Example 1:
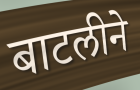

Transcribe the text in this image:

बाटलीने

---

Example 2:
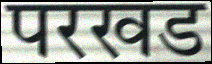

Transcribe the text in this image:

परखड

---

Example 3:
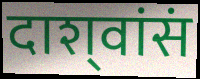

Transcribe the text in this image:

दाश्वांसं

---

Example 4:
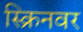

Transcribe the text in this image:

स्क्रिनवर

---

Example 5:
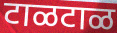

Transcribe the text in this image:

टाळटाळ